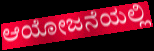
ಆಯೋಜನೆಯಲ್ಲಿ